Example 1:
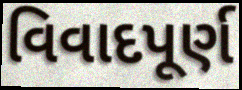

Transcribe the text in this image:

વિવાદપૂર્ણ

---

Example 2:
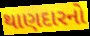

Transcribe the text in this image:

થાણદારનો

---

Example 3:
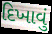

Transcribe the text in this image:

દિખાવું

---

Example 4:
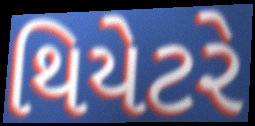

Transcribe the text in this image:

થિયેટરે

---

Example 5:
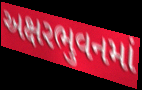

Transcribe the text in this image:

અક્ષરભુવનમાં